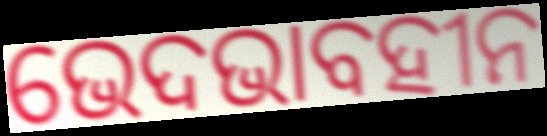
ଭେଦଭାବହୀନ